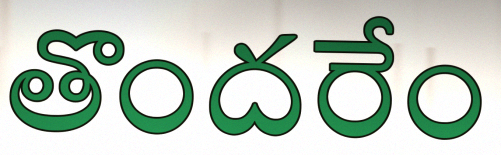
తొందరేం